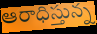
ఆరాధిస్తున్న